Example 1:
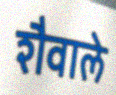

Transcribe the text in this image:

शैवाले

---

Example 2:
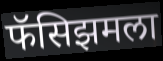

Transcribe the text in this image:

फॅसिझमला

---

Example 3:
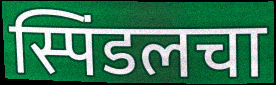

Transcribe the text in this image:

स्पिंडलचा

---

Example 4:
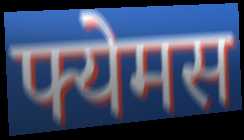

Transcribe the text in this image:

फ्येमस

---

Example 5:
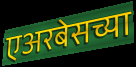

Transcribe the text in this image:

एअरबेसच्या